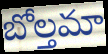
బోల్తమా